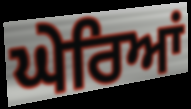
ਘੇਰਿਆਂ